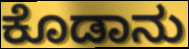
ಕೊಡಾನು